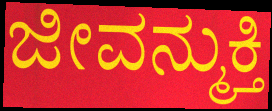
ಜೀವನ್ಮುಕ್ತಿ